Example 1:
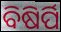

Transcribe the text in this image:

ବିଷିର୍ପି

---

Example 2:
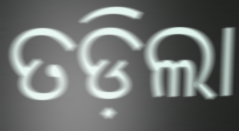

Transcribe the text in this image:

ତଡ଼ିଲା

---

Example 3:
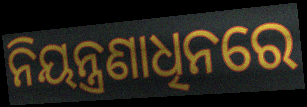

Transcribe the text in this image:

ନିୟନ୍ତ୍ରଣାଧିନରେ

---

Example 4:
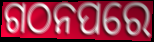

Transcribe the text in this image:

ଗଠନପରେ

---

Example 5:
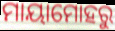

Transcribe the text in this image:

ମାୟାମୋହରୁ